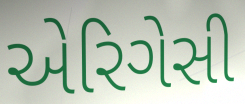
એરિગેસી